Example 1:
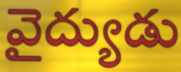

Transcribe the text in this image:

వైద్యుడు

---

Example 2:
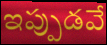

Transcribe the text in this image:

ఇప్పుడవే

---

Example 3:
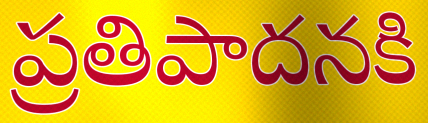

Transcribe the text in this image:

ప్రతిపాదనకి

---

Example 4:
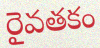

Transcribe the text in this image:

రైవతకం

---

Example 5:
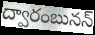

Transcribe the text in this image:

ద్వారంబునన్